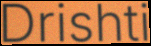
Drishti